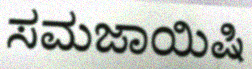
ಸಮಜಾಯಿಷಿ